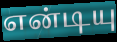
என்டியு